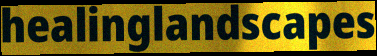
healinglandscapes